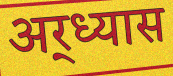
अर्ध्यास